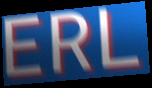
ERL